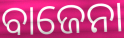
ବାଜେନା